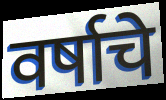
वर्षाचे